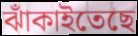
ঝাঁকাইতেছে